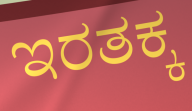
ಇರತಕ್ಕ